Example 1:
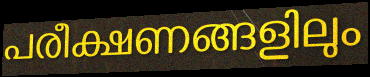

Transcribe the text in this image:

പരീക്ഷണങ്ങളിലും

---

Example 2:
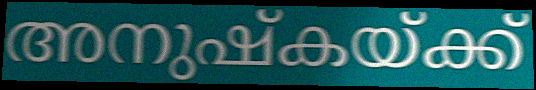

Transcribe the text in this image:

അനുഷ്കയ്ക്ക്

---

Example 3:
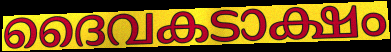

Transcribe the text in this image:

ദൈവകടാക്ഷം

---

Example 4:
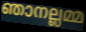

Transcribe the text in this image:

ഞാനല്ലമ്മ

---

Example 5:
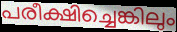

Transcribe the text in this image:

പരീക്ഷിച്ചെങ്കിലും